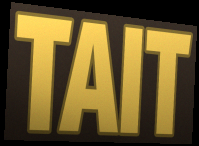
TAIT